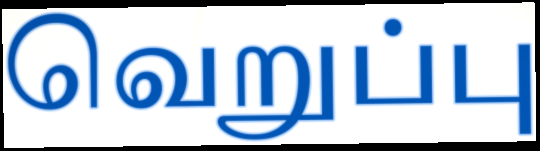
வெறுப்பு